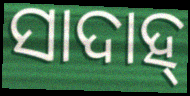
ସାଦାହ୍